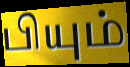
பியும்